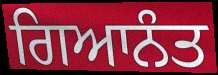
ਗਿਆਨੰਤ